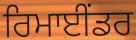
ਰਿਮਾਈਂਡਰ